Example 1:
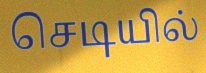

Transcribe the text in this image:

செடியில்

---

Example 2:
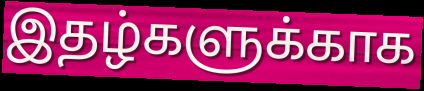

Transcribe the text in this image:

இதழ்களுக்காக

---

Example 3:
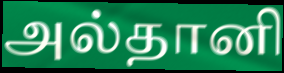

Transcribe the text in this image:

அல்தானி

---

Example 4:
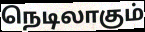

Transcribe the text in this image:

நெடிலாகும்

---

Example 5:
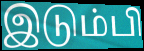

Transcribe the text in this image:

இடும்பி